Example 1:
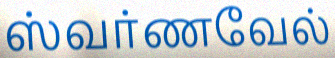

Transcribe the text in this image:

ஸ்வர்ணவேல்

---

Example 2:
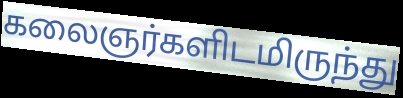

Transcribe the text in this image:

கலைஞர்களிடமிருந்து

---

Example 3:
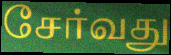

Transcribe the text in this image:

சேர்வது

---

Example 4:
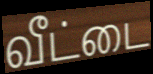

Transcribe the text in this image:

வீட்டை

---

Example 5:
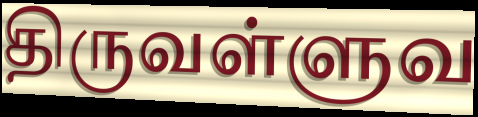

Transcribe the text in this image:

திருவள்ளுவ